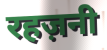
रहज़नी